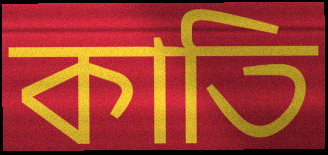
কাতি